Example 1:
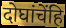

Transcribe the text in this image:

दोघांचेंहि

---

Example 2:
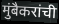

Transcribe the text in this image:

मुंबैकरांची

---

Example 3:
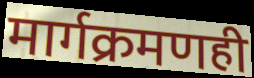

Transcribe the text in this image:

मार्गक्रमणही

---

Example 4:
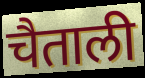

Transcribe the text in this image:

चैताली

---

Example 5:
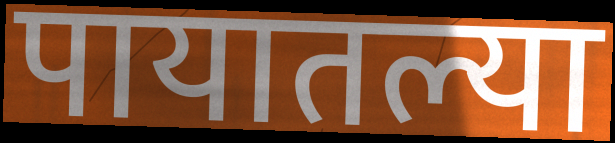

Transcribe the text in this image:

पायातल्या